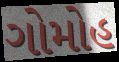
ગોમોહ